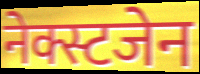
नेक्स्टजेन